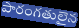
పారంగతులైన